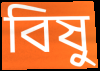
বিষু